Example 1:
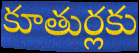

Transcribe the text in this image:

కూతుర్లకు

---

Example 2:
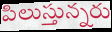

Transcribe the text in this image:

పిలుస్తున్నరు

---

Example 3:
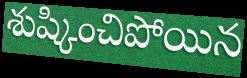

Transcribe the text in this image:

శుష్కించిపోయిన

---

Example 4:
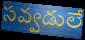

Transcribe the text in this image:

సవ్వడులే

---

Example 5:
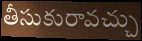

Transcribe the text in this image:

తీసుకురావచ్చు